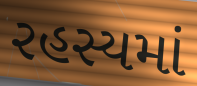
રહસ્યમાં